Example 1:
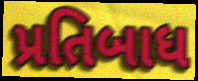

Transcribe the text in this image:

પ્રતિબાધ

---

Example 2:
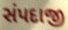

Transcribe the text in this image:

સંપદાજી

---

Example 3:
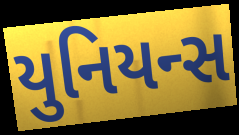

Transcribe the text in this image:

યુનિયન્સ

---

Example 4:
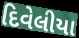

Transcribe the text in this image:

દિવેલીયા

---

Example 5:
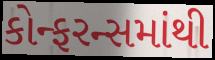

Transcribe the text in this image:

કોન્ફરન્સમાંથી